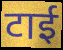
टाई